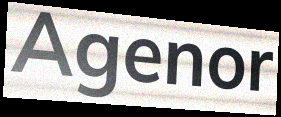
Agenor